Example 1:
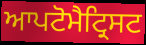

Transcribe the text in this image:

ਆਪਟੋਮੈਟ੍ਰਿਸਟ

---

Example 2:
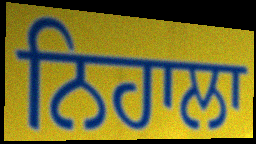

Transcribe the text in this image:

ਨਿਹਾਲਾ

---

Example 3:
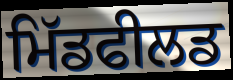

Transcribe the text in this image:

ਮਿੱਡਫੀਲਡ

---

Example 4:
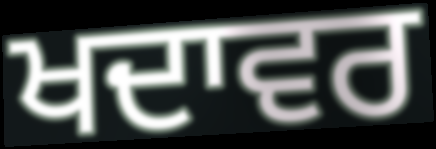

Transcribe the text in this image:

ਖਦਾਵਰ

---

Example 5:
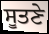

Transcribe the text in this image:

ਸੂਤਣੇ